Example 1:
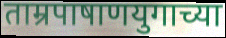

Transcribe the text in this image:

ताम्रपाषाणयुगाच्या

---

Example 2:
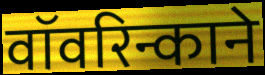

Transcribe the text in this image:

वॉवरिन्काने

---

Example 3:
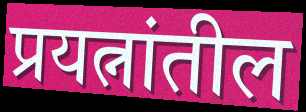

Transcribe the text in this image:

प्रयत्नांतील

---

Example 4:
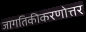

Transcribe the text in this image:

जागतिकीकरणोत्तर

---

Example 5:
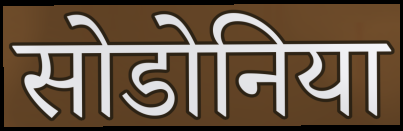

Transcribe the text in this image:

सोडोनिया